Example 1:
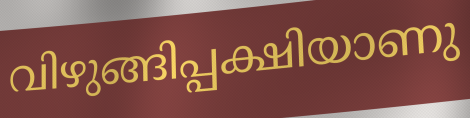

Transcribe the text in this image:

വിഴുങ്ങിപ്പക്ഷിയാണു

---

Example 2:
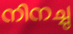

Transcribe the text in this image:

നിനച്ചു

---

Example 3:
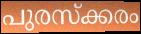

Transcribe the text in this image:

പുരസ്ക്കരം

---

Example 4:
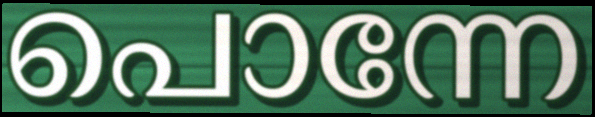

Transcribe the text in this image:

പൊന്നേ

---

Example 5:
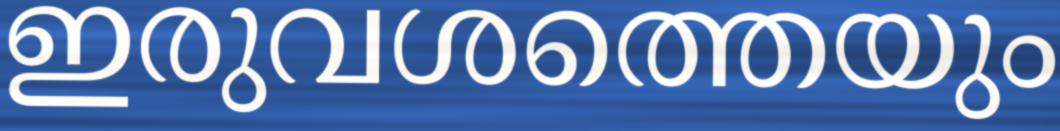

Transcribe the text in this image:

ഇരുവശത്തെയും